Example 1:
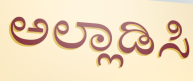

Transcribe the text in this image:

ಅಲ್ಲಾಡಿಸಿ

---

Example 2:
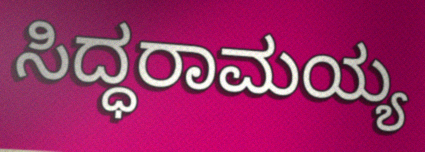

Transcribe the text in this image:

ಸಿದ್ಧರಾಮಯ್ಯ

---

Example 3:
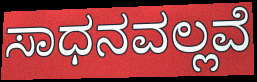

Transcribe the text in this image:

ಸಾಧನವಲ್ಲವೆ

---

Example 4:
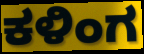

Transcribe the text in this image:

ಕಳಿಂಗ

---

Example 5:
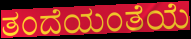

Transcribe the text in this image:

ತಂದೆಯಂತೆಯೆ